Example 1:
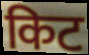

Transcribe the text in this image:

किट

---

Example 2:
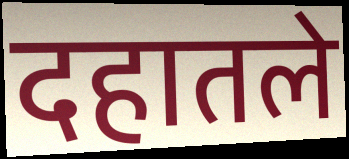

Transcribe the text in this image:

दहातले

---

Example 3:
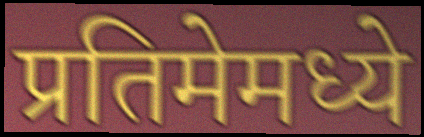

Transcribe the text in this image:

प्रतिमेमध्ये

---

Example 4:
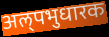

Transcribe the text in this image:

अल्पभुधारक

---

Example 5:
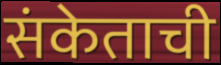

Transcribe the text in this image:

संकेताची